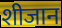
शीजान